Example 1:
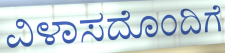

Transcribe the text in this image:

ವಿಳಾಸದೊಂದಿಗೆ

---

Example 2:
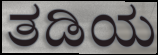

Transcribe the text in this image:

ತಡಿಯ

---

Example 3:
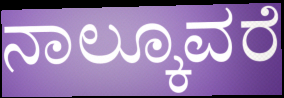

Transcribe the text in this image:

ನಾಲ್ಕೂವರೆ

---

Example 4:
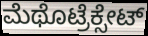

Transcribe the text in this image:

ಮೆಥೊಟ್ರೆಕ್ಸೇಟ್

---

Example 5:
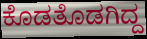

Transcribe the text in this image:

ಕೊಡತೊಡಗಿದ್ದ